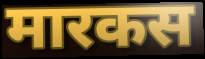
मारकस